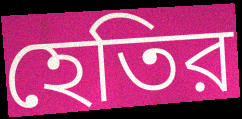
হেতির